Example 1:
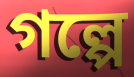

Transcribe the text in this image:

গল্পে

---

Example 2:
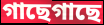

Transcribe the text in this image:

গাছেগাছে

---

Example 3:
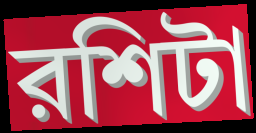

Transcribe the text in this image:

রশিটা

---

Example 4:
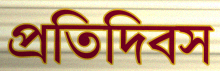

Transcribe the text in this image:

প্রতিদিবস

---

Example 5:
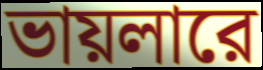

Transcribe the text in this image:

ভায়লারে